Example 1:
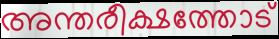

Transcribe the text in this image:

അന്തരീക്ഷത്തോട്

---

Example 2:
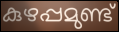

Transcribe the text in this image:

കുഴപ്പമുണ്ട്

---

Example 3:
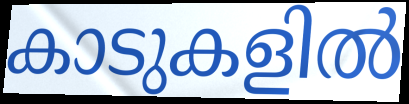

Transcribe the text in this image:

കാടുകളിൽ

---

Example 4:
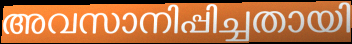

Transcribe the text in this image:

അവസാനിപ്പിച്ചതായി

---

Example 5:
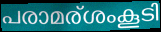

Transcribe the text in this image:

പരാമര്ശംകൂടി